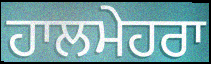
ਹਾਲਮੇਹਰਾ